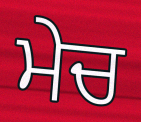
ਮੇਚ